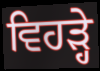
ਵਿਹੜ੍ਹੇ